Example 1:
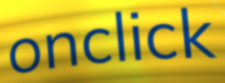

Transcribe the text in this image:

onclick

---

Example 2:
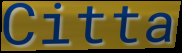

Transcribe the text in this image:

Citta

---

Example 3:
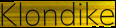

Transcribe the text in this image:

Klondike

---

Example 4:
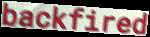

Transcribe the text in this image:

backfired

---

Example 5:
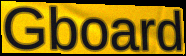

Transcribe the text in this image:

Gboard